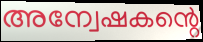
അന്വേഷകന്റെ